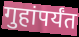
गुहांपर्यंत